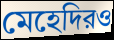
মেহেদিরও